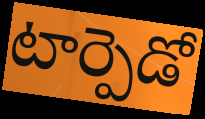
టార్పెడో